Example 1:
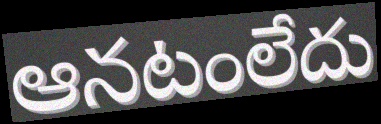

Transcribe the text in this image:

ఆనటంలేదు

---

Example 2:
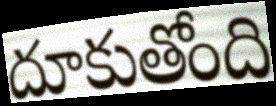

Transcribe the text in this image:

దూకుతోంది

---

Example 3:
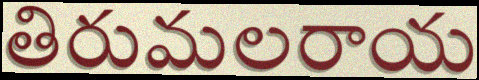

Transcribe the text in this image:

తిరుమలరాయ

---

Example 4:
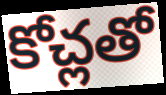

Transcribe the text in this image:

కోచ్లతో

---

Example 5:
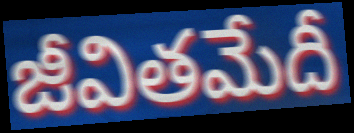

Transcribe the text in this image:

జీవితమేదీ